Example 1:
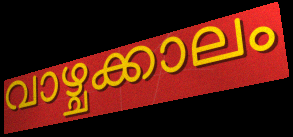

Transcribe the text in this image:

വാഴ്ചക്കാലം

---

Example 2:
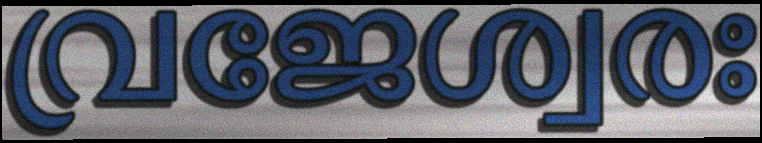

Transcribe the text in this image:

വ്രജേശ്വരഃ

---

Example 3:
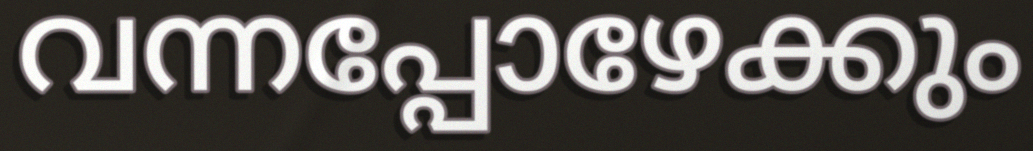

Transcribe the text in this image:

വന്നപ്പോഴേക്കും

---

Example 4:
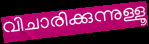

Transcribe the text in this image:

വിചാരിക്കുന്നുള്ളൂ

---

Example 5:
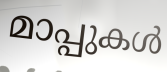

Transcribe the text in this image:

മാപ്പുകൾ